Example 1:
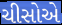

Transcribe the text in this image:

ચીસોએ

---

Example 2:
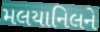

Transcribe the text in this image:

મલયાનિલને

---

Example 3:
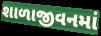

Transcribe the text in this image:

શાળાજીવનમાં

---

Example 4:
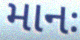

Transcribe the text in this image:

માનઃ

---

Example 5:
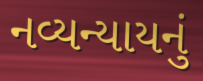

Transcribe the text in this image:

નવ્યન્યાયનું